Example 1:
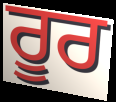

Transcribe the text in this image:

ਰੂਰ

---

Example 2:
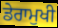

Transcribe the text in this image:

ਡੇਰਾਮੁਖੀ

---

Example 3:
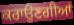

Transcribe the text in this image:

ਕਰਾਉਣਗੀਆਂ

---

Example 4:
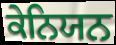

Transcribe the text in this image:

ਕੇਨਿਯਨ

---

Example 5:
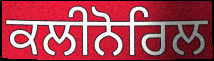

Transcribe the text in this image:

ਕਲੀਨੋਰਿਲ